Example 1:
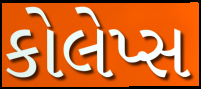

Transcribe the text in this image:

કોલેપ્સ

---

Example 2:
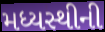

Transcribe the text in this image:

મધ્યસ્થીની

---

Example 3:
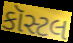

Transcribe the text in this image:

કૉસ્ટલ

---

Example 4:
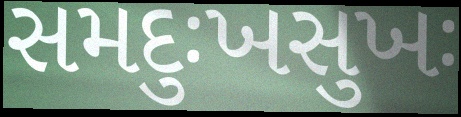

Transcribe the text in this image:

સમદુઃખસુખઃ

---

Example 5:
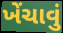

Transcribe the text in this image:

ખેંચાવું